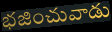
భజించువాడు